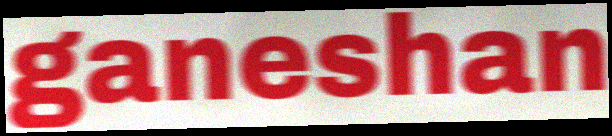
ganeshan